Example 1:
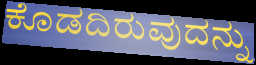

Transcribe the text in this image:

ಕೊಡದಿರುವುದನ್ನು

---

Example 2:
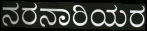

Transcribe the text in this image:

ನರನಾರಿಯರ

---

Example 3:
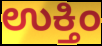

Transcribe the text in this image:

ಉಕ್ತಿಂ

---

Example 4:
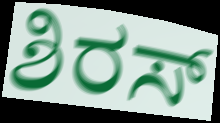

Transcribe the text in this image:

ಶಿರಸ್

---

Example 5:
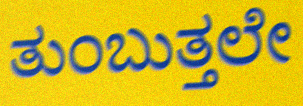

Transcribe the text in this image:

ತುಂಬುತ್ತಲೇ